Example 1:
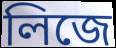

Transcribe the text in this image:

লিজে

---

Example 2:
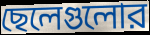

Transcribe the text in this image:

ছেলেগুলোর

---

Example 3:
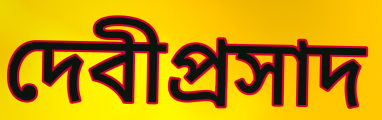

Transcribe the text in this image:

দেবীপ্রসাদ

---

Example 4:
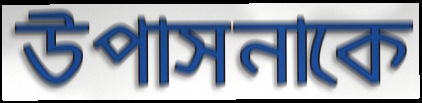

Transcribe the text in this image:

উপাসনাকে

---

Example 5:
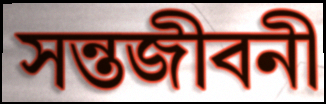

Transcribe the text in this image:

সন্তজীবনী